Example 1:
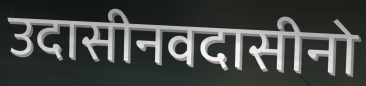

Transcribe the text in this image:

उदासीनवदासीनो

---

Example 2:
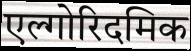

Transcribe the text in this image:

एल्गोरिदमिक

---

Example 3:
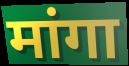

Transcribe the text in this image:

मांगा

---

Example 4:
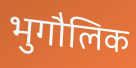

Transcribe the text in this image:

भुगौलिक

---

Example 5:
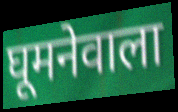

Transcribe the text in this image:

घूमनेवाला